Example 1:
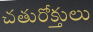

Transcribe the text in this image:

చతురోక్తులు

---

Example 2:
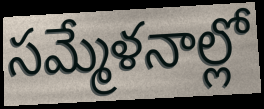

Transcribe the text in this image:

సమ్మేళనాల్లో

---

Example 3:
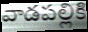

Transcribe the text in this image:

వాడపల్లికి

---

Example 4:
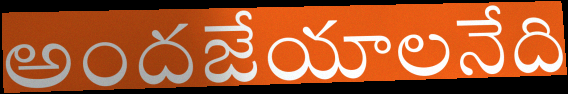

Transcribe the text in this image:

అందజేయాలనేది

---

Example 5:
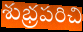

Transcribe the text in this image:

శుభ్రపరిచి